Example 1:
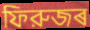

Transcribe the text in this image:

ফিৰুজৰ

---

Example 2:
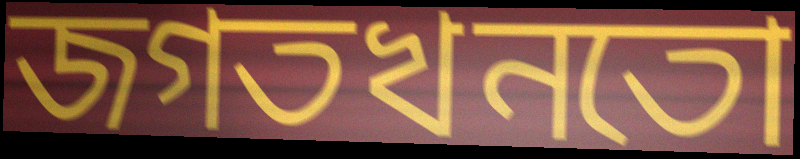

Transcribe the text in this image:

জগতখনতো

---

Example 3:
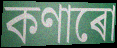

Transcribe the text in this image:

কণাৰো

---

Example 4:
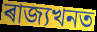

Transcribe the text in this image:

ৰাজ্যখনত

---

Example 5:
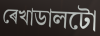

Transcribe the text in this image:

ৰেখাডালটো